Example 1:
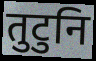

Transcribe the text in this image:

तुटुनि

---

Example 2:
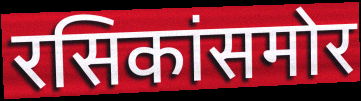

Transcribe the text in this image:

रसिकांसमोर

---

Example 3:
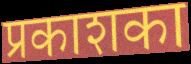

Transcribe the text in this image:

प्रकाशका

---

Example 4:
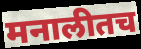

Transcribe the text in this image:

मनालीतच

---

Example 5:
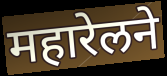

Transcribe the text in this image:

महारेलने